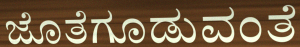
ಜೊತೆಗೂಡುವಂತೆ